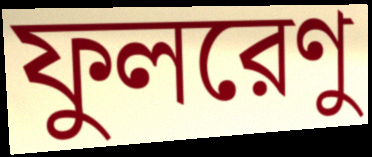
ফুলরেণু